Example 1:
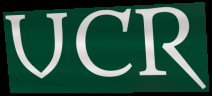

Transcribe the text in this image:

UCR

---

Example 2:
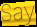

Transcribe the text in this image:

Say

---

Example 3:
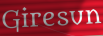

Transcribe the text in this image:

Giresun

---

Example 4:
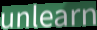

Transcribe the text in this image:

unlearn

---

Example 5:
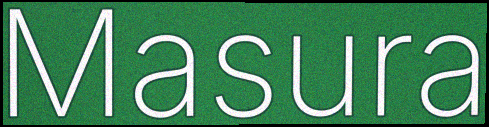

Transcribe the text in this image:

Masura